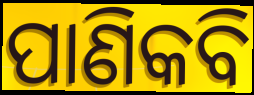
ପାଣିକବି